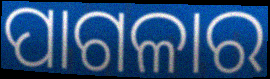
ପାଗଳାର